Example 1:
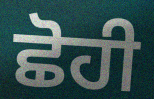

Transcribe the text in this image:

ਛੋਹੀ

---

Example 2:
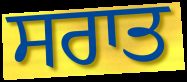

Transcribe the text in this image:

ਸਰਾਤ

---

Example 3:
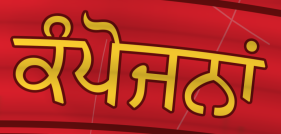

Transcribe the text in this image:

ਕੰਪੋਜਨਾਂ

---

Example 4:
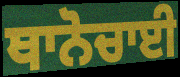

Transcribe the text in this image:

ਥਾਨੋਚਾਈ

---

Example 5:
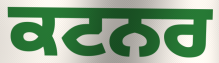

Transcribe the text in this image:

ਕਟਨਰ